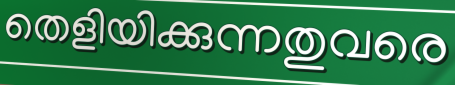
തെളിയിക്കുന്നതുവരെ